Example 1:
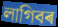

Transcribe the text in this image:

লাগিবৰ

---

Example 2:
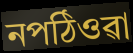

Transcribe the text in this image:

নপঠিওৱা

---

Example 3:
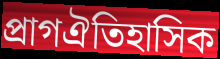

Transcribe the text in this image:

প্ৰাগঐতিহাসিক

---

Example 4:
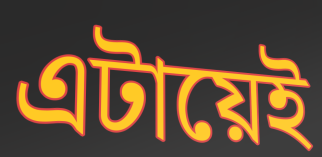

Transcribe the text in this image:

এটায়েই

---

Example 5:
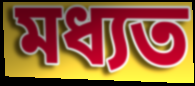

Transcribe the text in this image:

মধ্যত